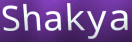
Shakya